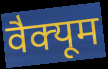
वैक्‍यूम